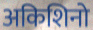
अकिशिनो